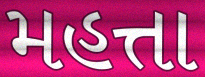
મહત્તા